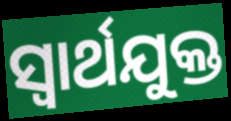
ସ୍ୱାର୍ଥଯୁକ୍ତ